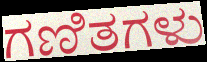
ಗಣಿತಗಳು